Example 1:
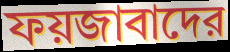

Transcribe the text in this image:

ফয়জাবাদের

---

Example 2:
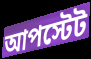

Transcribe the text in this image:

আপস্টেট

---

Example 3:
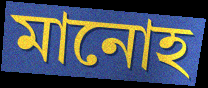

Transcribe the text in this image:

মানোহ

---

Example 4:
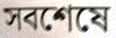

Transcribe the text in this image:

সবশেষে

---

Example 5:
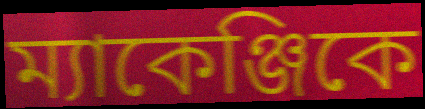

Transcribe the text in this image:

ম্যাকেঞ্জিকে